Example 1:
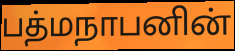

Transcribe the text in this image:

பத்மநாபனின்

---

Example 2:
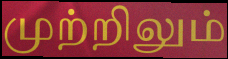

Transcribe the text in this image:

முற்றிலும்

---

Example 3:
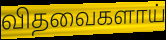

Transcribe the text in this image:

விதவைகளாய்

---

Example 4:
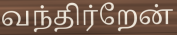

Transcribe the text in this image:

வந்திர்றேன்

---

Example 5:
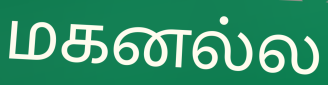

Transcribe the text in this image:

மகனல்ல